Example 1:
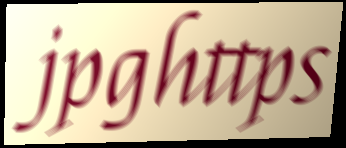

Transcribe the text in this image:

jpghttps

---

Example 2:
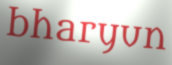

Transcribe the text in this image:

bharyun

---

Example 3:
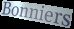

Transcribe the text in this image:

Bonniers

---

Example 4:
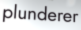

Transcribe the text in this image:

plunderer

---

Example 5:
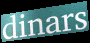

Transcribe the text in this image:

dinars